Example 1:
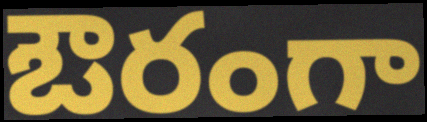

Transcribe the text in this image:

ఔరంగా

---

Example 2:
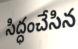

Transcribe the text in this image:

సిద్ధంచేసిన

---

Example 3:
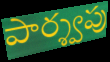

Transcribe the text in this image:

పార్శ్వపు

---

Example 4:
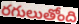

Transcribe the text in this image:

రగులుతోంది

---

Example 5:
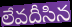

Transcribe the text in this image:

లేవదీసిన